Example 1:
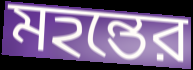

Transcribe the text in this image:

মহন্তের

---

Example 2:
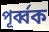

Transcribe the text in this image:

পূর্ব্বক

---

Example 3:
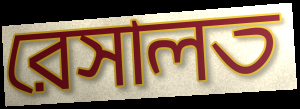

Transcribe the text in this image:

রেসালত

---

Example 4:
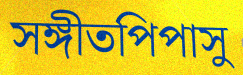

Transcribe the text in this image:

সঙ্গীতপিপাসু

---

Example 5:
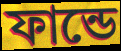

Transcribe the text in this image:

ফান্ডে